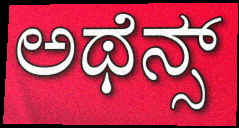
ಅಥೆನ್ಸ್